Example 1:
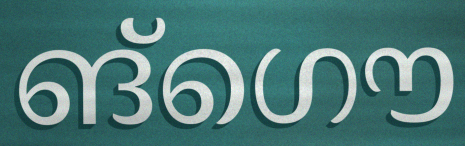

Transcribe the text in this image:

ങ്ഗൌ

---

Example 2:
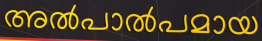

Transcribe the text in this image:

അൽപാൽപമായ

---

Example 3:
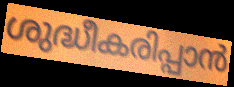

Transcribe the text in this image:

ശുദ്ധീകരിപ്പാൻ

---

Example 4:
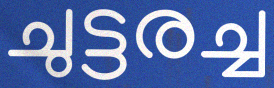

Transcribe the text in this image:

ചുട്ടരച്ച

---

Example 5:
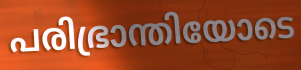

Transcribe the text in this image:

പരിഭ്രാന്തിയോടെ